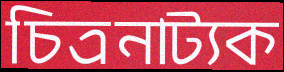
চিত্ৰনাট্যক